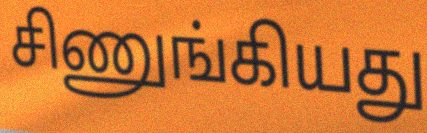
சிணுங்கியது